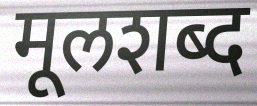
मूलशब्द